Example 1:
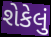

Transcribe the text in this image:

શેકેલું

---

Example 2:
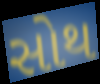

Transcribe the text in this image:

સોથ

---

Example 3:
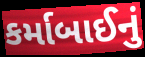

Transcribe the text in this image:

કર્માબાઈનું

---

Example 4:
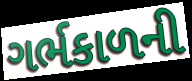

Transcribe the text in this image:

ગર્ભકાળની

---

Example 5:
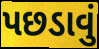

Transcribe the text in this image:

પછડાવું